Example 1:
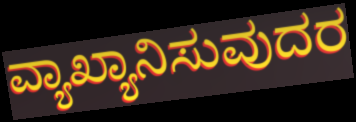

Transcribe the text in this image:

ವ್ಯಾಖ್ಯಾನಿಸುವುದರ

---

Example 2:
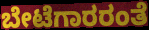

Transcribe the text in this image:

ಬೇಟೆಗಾರರಂತೆ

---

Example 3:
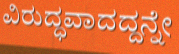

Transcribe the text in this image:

ವಿರುದ್ಧವಾದದ್ದನ್ನೇ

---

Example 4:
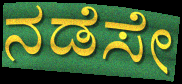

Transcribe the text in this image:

ನಡೆಸೇ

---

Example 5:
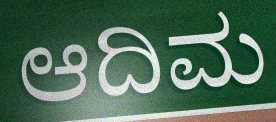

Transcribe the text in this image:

ಆದಿಮ